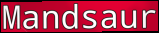
Mandsaur